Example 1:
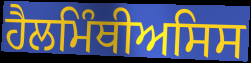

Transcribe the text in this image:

ਹੈਲਮਿੰਥੀਅਸਿਸ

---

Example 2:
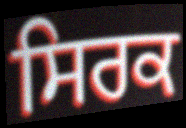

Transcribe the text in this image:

ਸਿਰਕ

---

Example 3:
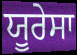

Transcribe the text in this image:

ਯੂਰੇਸਾ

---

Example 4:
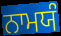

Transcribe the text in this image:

ਨਾਮਯੰ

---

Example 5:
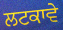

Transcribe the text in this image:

ਲਟਕਾਵੇ